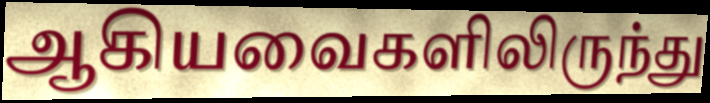
ஆகியவைகளிலிருந்து